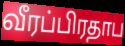
வீரப்பிரதாப